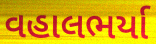
વહાલભર્યા